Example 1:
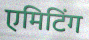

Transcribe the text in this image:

एमिटिंग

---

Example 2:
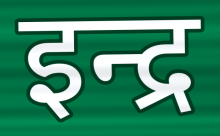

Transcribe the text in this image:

इन्द्र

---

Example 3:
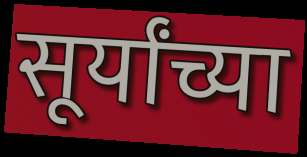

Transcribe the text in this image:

सूर्यांच्या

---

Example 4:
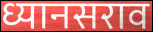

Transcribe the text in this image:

ध्यानसराव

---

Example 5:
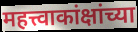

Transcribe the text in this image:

महत्त्वाकांक्षांच्या